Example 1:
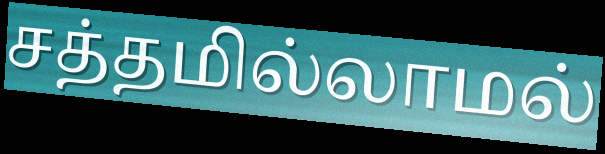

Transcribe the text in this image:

சத்தமில்லாமல்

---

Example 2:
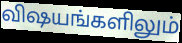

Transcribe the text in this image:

விஷயங்களிலும்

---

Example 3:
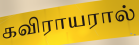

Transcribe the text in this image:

கவிராயரால்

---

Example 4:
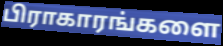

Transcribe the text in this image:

பிராகாரங்களை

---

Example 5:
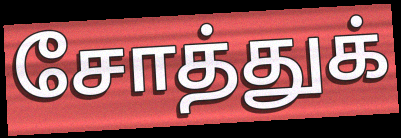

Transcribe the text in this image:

சோத்துக்